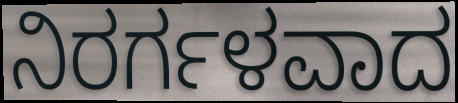
ನಿರರ್ಗಳವಾದ